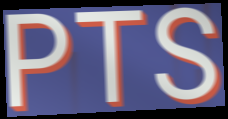
PTS